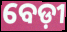
ବେଡ଼ୀ